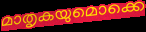
മാതൃകയുമൊക്കെ